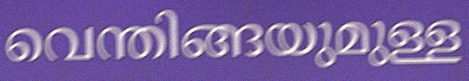
വെന്തിങ്ങയുമുള്ള